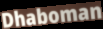
Dhaboman